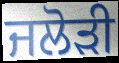
ਜਲੋੜੀ